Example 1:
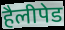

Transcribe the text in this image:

हैलीपेड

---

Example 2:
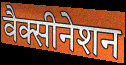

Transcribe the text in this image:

वैक्सीनेशन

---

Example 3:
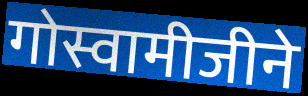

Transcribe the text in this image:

गोस्वामीजीने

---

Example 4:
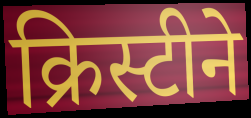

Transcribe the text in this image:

क्रिस्टीने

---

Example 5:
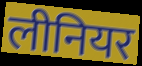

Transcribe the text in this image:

लीनियर